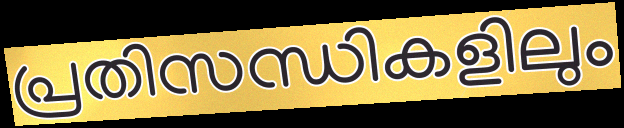
പ്രതിസന്ധികളിലും